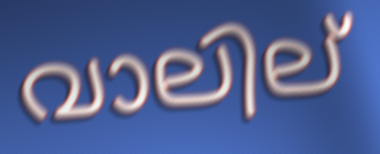
വാലില്